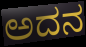
ಅದನ